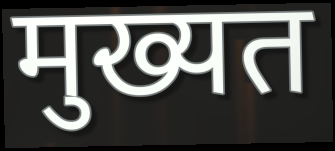
मुख्यत